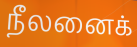
நீலனைக்